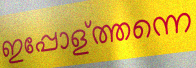
ഇപ്പോള്ത്തന്നെ